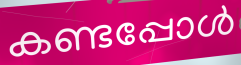
കണ്ടപ്പോൾ